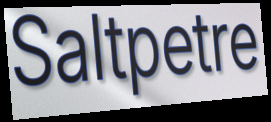
Saltpetre